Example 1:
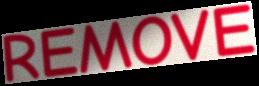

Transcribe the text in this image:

REMOVE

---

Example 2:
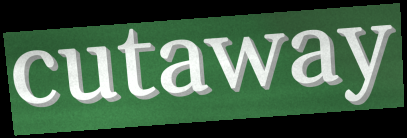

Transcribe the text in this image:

cutaway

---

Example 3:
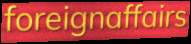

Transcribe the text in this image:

foreignaffairs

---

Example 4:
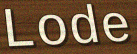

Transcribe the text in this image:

Lode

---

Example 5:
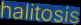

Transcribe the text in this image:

halitosis